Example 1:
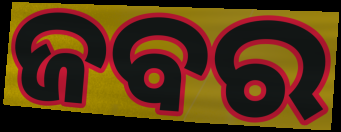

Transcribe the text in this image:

ଜବର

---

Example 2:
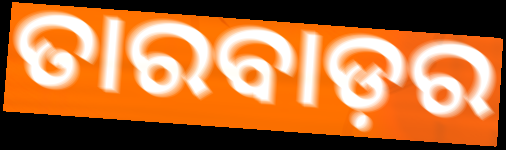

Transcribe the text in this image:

ତାରବାଡ଼ର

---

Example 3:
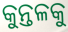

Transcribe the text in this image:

କୁନ୍ତଳକୁ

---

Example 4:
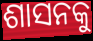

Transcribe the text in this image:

ଶାସନକୁ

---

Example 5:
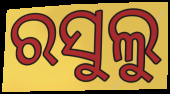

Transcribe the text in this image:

ରସୁଲୁ